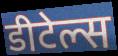
डीटेल्स